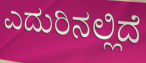
ಎದುರಿನಲ್ಲಿದೆ